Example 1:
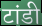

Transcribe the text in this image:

टांडी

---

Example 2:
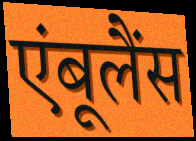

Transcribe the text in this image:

एंबूलैंस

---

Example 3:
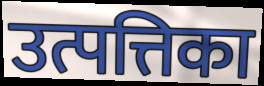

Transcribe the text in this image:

उत्पत्तिका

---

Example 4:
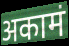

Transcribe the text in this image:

अकामं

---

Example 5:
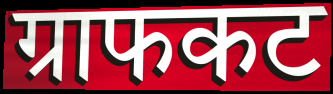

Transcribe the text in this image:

ग्राफकट